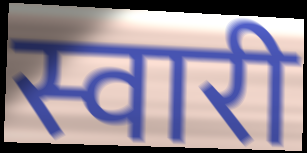
स्वारी